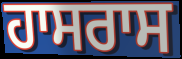
ਹਾਸਰਾਸ